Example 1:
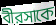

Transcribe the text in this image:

বীরসাকে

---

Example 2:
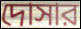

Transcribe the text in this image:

দোসার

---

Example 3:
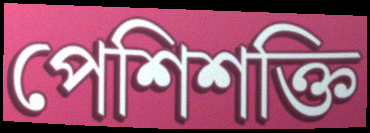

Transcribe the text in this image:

পেশিশক্তি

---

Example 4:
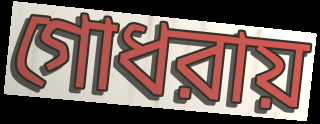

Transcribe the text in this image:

গোধরায়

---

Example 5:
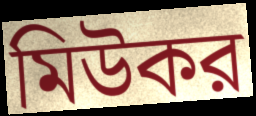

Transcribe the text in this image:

মিউকর